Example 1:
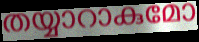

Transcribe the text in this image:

തയ്യാറാകുമോ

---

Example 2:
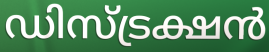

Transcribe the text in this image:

ഡിസ്ട്രക്ഷൻ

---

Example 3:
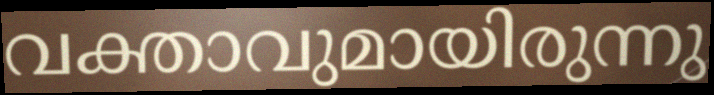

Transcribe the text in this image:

വക്താവുമായിരുന്നു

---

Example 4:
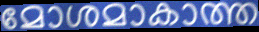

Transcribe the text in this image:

മോശമാകാത്ത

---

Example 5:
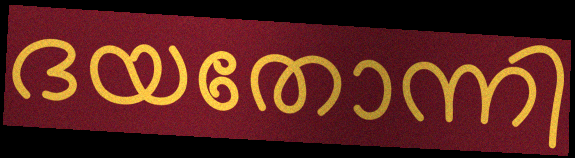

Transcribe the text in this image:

ദയതോന്നി